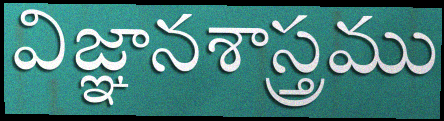
విజ్ఞానశాస్త్రము